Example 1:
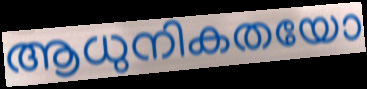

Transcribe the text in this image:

ആധുനികതയോ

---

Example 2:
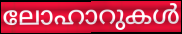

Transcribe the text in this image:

ലോഹാറുകൾ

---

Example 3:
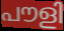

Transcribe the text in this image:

പൗളി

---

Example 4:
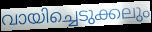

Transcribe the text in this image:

വായിച്ചെടുക്കലും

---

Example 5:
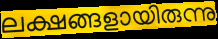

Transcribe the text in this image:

ലക്ഷങ്ങളായിരുന്നു